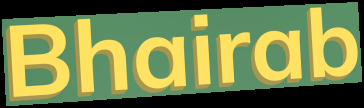
Bhairab